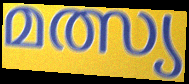
മത്സ്യ